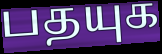
பதயுக